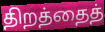
திறத்தைத்